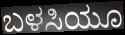
ಬಳಸಿಯೂ